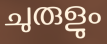
ചുരുളും